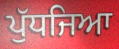
ਪੁੱਧਜਿਆ